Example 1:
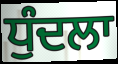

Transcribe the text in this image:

ਧੁੰਦਲਾ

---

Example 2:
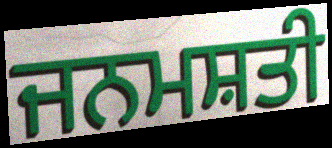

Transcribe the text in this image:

ਜਨਮਸ਼ਤੀ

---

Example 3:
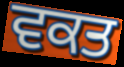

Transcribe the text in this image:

ਵਕਤ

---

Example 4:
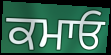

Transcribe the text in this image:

ਕਮਾਓ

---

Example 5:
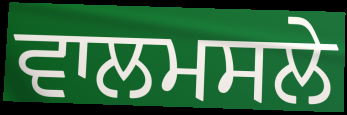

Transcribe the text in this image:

ਵਾਲਮਸਲੇ